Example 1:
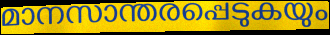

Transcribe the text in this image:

മാനസാന്തരപ്പെടുകയും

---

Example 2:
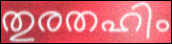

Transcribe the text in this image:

തുരതഹിം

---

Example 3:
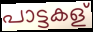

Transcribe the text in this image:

പാട്ടകള്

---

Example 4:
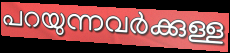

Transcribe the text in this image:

പറയുന്നവർക്കുള്ള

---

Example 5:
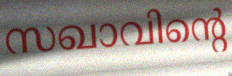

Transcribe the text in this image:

സഖാവിന്റെ